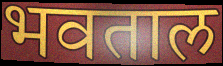
भवताल